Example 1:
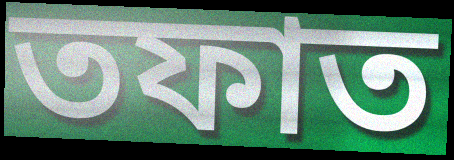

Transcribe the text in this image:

তফাত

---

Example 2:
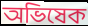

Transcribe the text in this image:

অভিষেক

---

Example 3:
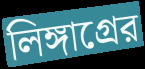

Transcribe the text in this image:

লিঙ্গাগ্রের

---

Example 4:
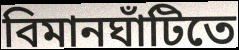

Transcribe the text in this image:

বিমানঘাঁটিতে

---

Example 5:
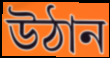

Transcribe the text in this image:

উঠান